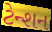
ટેન્શન